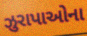
ઝુરાપાઓના